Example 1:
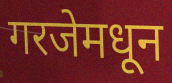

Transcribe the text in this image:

गरजेमधून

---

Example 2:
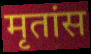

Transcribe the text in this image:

मृतांस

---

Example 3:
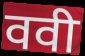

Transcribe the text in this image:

ववी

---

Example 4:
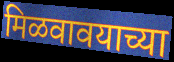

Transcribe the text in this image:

मिळवावयाच्या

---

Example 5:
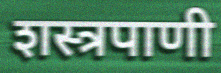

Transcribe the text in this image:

शस्त्रपाणी